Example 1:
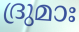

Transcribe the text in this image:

ദ്രുമാഃ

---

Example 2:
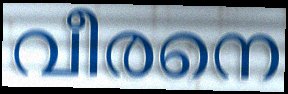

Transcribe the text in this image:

വീരനെ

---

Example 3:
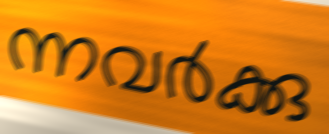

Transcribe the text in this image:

ന്നവർക്കു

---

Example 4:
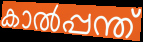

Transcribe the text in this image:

കാൽപ്പന്ത്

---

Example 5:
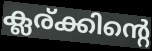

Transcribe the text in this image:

ക്ലര്ക്കിന്റെ